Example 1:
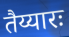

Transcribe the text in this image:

तैय्यारः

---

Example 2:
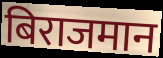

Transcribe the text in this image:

बिराजमान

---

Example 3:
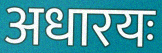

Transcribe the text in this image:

अधारयः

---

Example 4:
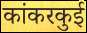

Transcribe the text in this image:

कांकरकुई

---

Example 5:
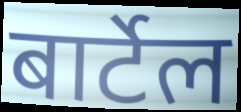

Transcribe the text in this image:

बार्टेल